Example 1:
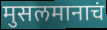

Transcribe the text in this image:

मुसलमानाचं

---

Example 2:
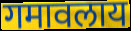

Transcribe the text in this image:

गमावलाय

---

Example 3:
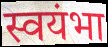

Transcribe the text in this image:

स्वयंभा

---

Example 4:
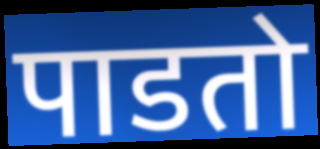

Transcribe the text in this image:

पाडतो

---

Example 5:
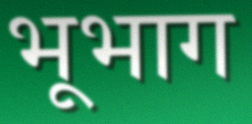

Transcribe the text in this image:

भूभाग